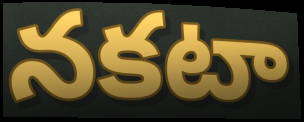
నకటా